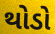
થોડો